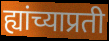
ह्यांच्याप्रती